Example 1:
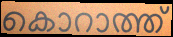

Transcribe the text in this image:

കൊറാത്ത്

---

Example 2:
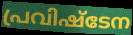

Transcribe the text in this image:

പ്രവിഷ്ടേന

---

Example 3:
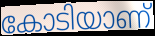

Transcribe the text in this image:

കോടിയാണ്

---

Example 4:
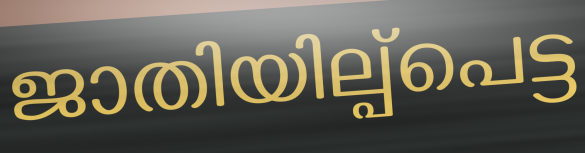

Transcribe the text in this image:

ജാതിയില്പ്പെട്ട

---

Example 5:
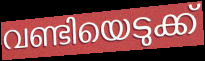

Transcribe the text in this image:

വണ്ടിയെടുക്ക്